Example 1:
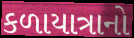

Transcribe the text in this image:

કળાયાત્રાનો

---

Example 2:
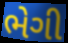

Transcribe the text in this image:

ભેગી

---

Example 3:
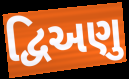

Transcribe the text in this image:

દ્વિઅણુ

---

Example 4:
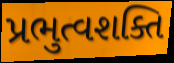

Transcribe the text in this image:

પ્રભુત્વશક્તિ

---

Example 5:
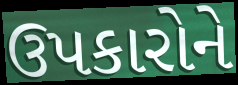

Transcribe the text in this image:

ઉપકારોને